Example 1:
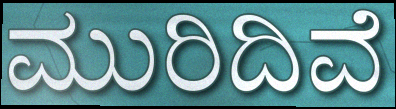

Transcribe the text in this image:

ಮುರಿದಿವೆ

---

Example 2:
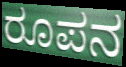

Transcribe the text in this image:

ರೂಪನ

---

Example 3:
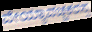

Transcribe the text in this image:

ವೇಯ್ಯಾವಚ್ಚಕರಸ್ಸ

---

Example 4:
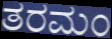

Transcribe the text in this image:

ತರಮಂ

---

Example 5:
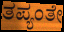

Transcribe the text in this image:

ತಪ್ಯಂತೇ